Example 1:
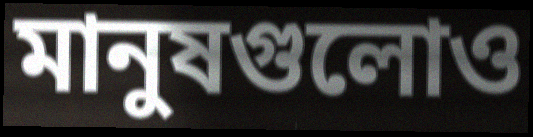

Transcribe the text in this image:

মানুষগুলোও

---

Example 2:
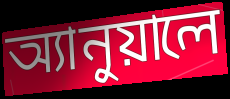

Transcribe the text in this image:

অ্যানুয়ালে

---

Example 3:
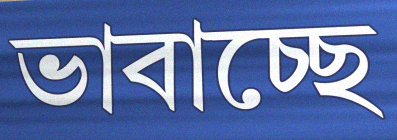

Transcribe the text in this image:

ভাবাচ্ছে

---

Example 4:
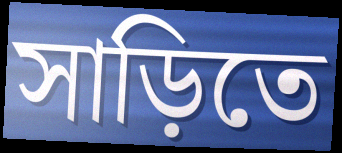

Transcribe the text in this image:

সাড়িতে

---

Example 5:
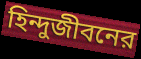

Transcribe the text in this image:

হিন্দুজীবনের